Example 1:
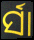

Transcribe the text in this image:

ର୍ସା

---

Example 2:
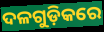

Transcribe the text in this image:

ଦଳଗୁଡ଼ିକରେ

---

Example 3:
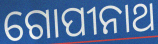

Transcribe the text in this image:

ଗୋପୀନାଥ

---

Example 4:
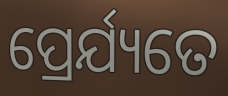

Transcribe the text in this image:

ପ୍ରେର୍ଯ୍ୟତେ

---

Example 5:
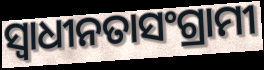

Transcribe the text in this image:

ସ୍ଵାଧୀନତାସଂଗ୍ରାମୀ